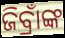
ଜିବ୍ରାଁଙ୍କ